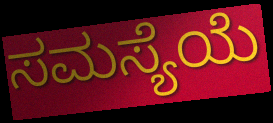
ಸಮಸ್ಯೆಯೆ